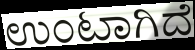
ಉಂಟಾಗಿದೆ